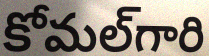
కోమల్‌గారి